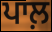
ਪਾਲ਼